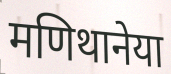
मणिथानेया